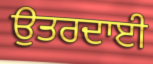
ਉਤਰਦਾਈ